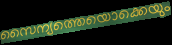
സൈന്യത്തെയൊക്കെയും